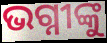
ଭଗ୍ନୀଙ୍କୁ